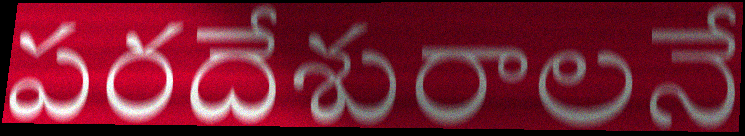
పరదేశురాలనే